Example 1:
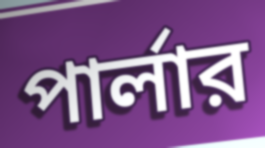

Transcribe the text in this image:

পার্লার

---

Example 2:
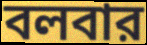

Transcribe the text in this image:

বলবার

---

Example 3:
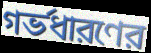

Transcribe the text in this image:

গর্ভধারণের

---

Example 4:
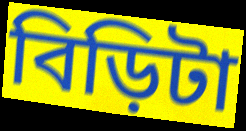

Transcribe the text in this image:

বিড়িটা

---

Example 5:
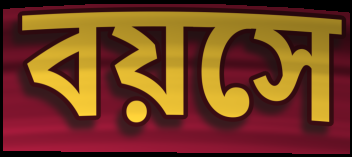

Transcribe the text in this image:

বয়সে